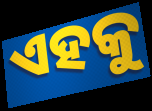
ଏହକୁ